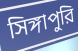
সিঙ্গাপুরি